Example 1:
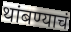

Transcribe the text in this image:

थांबण्याचं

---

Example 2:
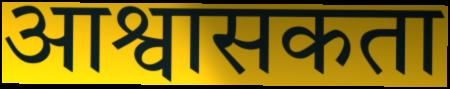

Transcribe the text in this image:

आश्वासकता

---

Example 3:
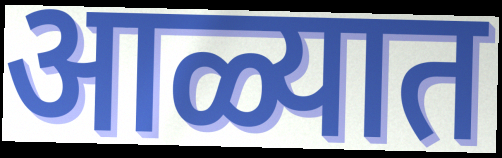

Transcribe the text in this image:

आळ्यात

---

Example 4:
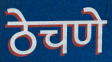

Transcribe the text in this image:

ठेचणे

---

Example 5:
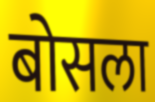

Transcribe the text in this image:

बोसला